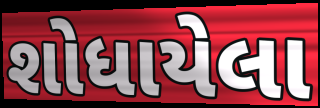
શોધાયેલા